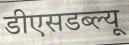
डीएसडब्ल्यू